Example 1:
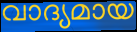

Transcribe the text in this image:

വാദ്യമായ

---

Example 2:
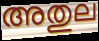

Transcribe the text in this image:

അതുല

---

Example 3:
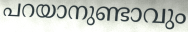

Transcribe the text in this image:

പറയാനുണ്ടാവും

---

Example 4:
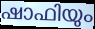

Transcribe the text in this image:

ഷാഫിയും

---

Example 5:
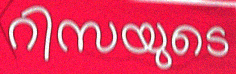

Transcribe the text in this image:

റിസയുടെ